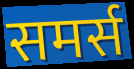
समर्स